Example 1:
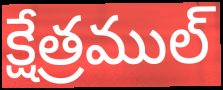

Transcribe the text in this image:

క్షేత్రముల్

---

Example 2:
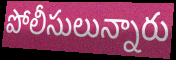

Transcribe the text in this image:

పోలీసులున్నారు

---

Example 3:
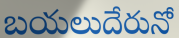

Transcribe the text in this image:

బయలుదేరునో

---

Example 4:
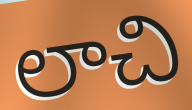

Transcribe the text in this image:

లాచి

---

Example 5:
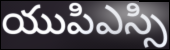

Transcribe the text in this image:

యుపిఎస్సి